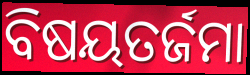
ବିଷୟତର୍ଜମା